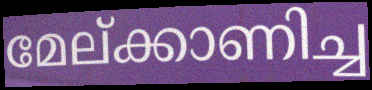
മേല്ക്കാണിച്ച